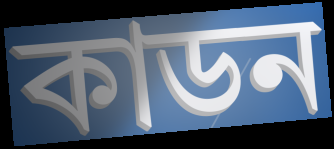
কাডন